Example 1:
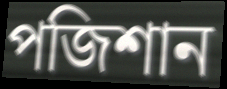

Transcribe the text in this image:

পজিশান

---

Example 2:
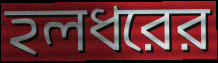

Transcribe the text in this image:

হলধরের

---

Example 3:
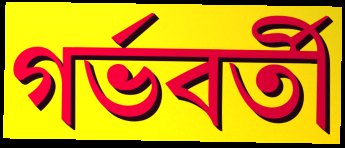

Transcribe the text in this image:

গর্ভবর্তী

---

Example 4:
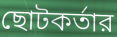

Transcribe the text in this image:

ছোটকর্তার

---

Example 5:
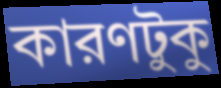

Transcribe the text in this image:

কারণটুকু